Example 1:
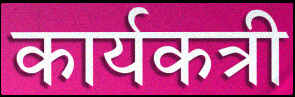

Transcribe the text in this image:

कार्यकत्री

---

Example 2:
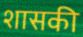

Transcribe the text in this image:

शासकी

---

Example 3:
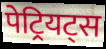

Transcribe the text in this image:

पेट्रियट्स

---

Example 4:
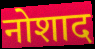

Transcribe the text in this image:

नोशाद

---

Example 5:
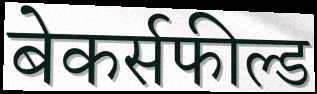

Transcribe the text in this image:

बेकर्सफील्ड